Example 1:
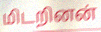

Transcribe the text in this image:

மிடறினன்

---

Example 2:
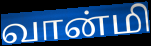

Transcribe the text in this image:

வான்மி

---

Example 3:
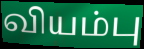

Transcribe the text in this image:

வியம்பு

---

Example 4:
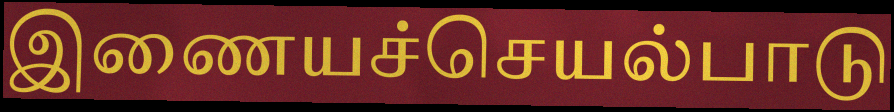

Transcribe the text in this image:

இணையச்செயல்பாடு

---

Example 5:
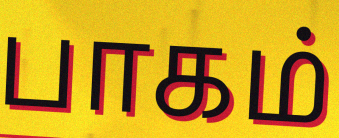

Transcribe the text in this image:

பாகம்